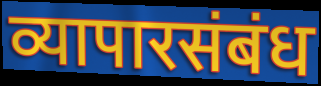
व्यापारसंबंध